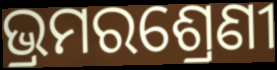
ଭ୍ରମରଶ୍ରେଣୀ